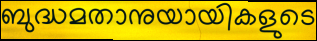
ബുദ്ധമതാനുയായികളുടെ